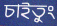
চাইতুং